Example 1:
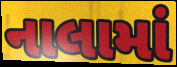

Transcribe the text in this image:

નાલામાં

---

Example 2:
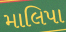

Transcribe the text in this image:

માલિપા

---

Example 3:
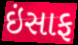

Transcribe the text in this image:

ઇંસાફ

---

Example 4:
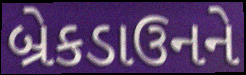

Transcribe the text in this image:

બ્રેકડાઉનને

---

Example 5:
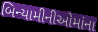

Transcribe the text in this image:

બિન્યામીનીઓમાંના